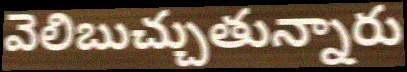
వెలిబుచ్చుతున్నారు